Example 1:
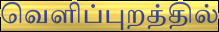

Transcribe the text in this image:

வெளிப்புறத்தில்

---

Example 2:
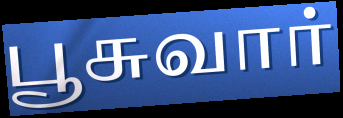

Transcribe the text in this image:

பூசுவார்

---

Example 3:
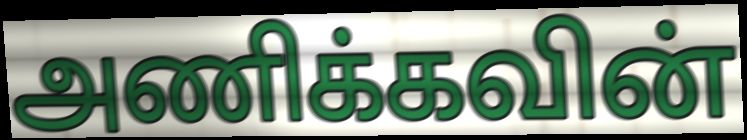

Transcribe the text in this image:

அணிக்கவின்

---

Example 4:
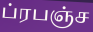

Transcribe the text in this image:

ப்ரபஞ்ச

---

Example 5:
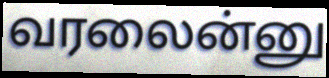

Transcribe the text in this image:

வரலைன்னு